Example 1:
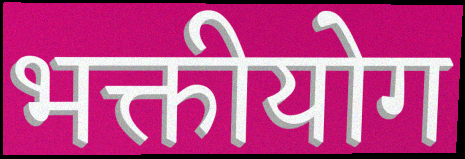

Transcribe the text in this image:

भक्तीयोग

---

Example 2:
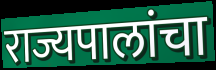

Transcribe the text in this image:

राज्यपालांचा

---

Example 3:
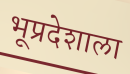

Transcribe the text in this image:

भूप्रदेशाला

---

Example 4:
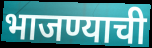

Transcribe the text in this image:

भाजण्याची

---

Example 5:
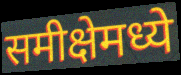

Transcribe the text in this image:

समीक्षेमध्ये